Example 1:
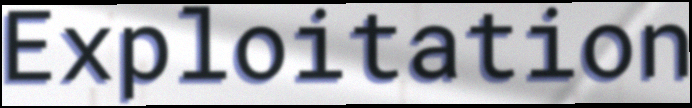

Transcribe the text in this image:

Exploitation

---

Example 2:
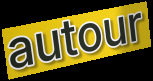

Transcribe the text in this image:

autour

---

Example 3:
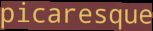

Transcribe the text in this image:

picaresque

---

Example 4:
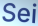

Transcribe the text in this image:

Sei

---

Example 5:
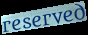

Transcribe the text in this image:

reserved